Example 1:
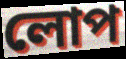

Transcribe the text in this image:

লোপ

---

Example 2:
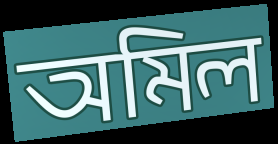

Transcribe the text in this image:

অমিল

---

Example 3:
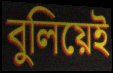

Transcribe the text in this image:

বুলিয়েই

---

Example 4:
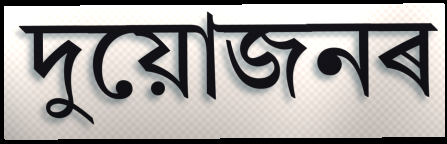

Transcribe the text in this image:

দুয়োজনৰ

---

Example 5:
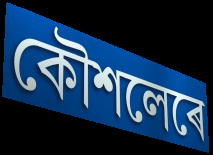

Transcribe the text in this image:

কৌশলেৰে